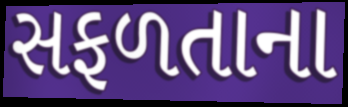
સફળતાના